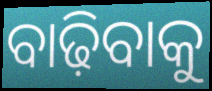
ବାଢ଼ିବାକୁ